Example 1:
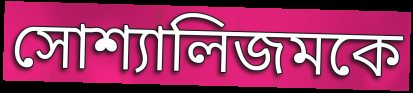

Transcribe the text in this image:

সোশ্যালিজমকে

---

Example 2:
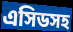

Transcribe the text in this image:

এসিডসহ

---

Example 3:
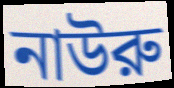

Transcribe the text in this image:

নাউরু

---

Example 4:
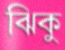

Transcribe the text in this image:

ঝিকু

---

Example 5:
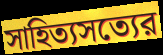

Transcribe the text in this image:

সাহিত্যসত্যের